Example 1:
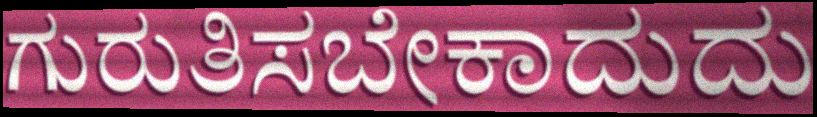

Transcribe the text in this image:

ಗುರುತಿಸಬೇಕಾದುದು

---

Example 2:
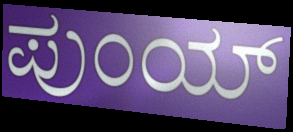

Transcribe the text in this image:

ಪುಂಯ್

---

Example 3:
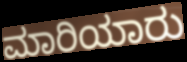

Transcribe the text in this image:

ಮಾರಿಯಾರು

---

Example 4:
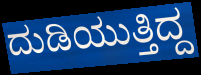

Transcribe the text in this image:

ದುಡಿಯುತ್ತಿದ್ದ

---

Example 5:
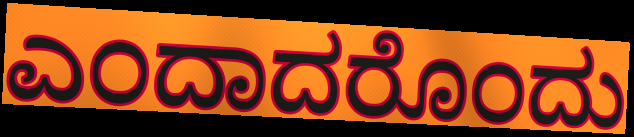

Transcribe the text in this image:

ಎಂದಾದರೊಂದು